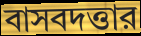
বাসবদত্তার